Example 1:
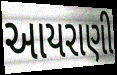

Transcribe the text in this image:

આયરાણી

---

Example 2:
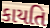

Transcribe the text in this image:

કાયતિ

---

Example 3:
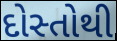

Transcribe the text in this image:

દોસ્તોથી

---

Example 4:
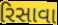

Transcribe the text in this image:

રિસાવા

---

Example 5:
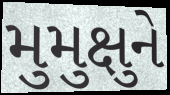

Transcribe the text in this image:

મુમુક્ષુને